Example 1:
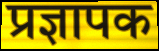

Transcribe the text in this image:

प्रज्ञापक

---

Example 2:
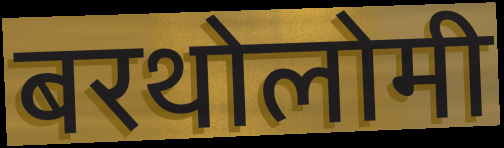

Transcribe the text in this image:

बरथोलोमी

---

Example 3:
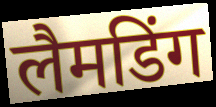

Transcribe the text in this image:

लैमडिंग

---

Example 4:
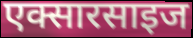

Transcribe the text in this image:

एक्सारसाइज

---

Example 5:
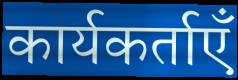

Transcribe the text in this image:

कार्यकर्ताएँ